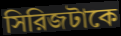
সিরিজটাকে